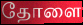
தோளை